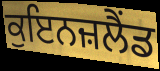
ਕੁਇਨਜ਼ਲੈਂਡ